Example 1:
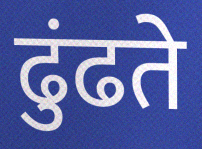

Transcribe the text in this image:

ढुंढते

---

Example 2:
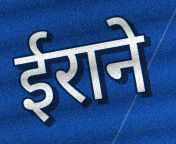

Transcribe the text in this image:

ईराने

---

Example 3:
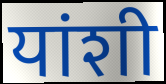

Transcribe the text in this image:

यांशी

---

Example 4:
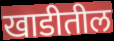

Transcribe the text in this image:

खाडीतील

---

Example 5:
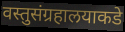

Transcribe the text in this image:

वस्तुसंग्रहालयाकडे